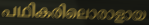
പഥികരിലൊരാളായ